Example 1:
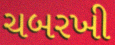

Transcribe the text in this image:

ચબરખી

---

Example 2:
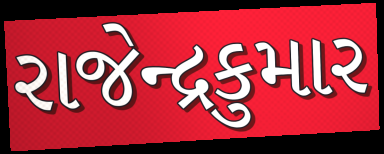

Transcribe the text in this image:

રાજેન્દ્રકુમાર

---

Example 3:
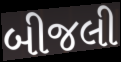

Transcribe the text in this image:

બીજલી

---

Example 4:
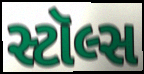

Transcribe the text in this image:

સ્ટૉલ્સ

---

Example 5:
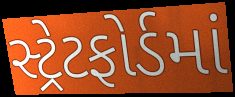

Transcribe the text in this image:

સ્ટ્રેટફોર્ડમાં